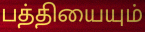
பத்தியையும்